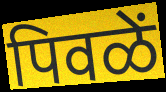
पिवळें